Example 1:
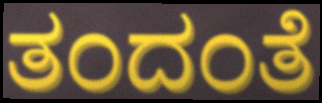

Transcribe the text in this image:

ತಂದಂತೆ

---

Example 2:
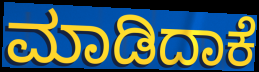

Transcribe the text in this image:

ಮಾಡಿದಾಕೆ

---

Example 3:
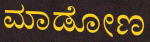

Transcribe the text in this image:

ಮಾಡೋಣ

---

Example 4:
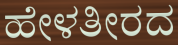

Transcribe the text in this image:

ಹೇಳತೀರದ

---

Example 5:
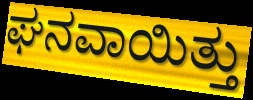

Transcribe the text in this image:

ಘನವಾಯಿತ್ತು